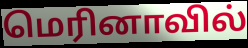
மெரினாவில்